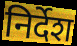
निर्देश